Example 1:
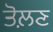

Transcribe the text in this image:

ਤੋਲ਼ਣ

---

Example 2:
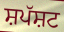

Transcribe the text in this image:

ਸ਼ਪੱਸ਼ਟ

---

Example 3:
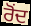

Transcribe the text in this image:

ਰੋਂਦ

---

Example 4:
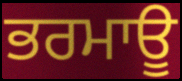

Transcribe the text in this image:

ਭਰਮਾਊ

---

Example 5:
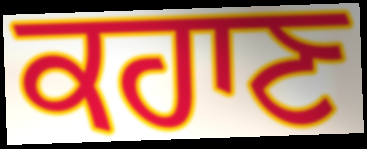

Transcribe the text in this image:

ਕਹਾਣ